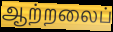
ஆற்றலைப்